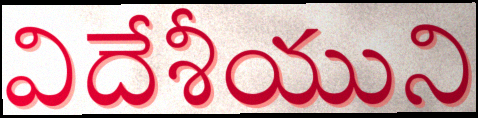
విదేశీయుని